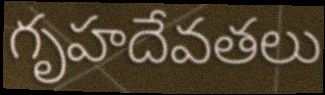
గృహదేవతలు